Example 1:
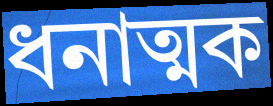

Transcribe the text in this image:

ধনাত্মক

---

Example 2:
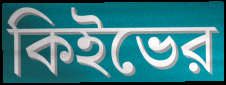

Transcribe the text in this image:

কিইভের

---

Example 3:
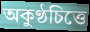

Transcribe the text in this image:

অকুণ্ঠচিত্তে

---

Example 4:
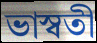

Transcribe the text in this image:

ভাস্বতী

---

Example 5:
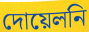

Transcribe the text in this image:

দোয়েলনি